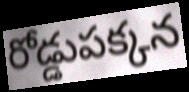
రోడ్డుపక్కన